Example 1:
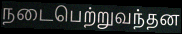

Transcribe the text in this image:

நடைபெற்றுவந்தன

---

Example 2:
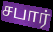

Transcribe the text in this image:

சபார்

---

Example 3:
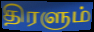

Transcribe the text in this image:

திரளும்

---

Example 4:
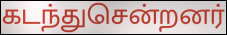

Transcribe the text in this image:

கடந்துசென்றனர்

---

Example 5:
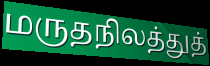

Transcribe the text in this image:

மருதநிலத்துத்